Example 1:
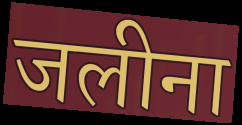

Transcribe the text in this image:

जलीना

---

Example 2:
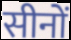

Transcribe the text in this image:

सीनों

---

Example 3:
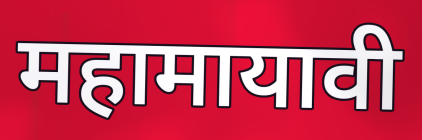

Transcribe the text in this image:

महामायावी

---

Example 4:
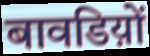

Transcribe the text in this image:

बावडिय़ों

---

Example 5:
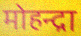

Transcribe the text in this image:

मोहन्द्रा